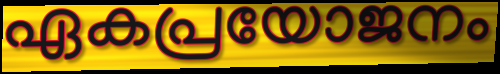
ഏകപ്രയോജനം